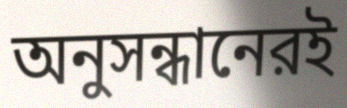
অনুসন্ধানেরই